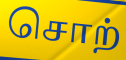
சொற்